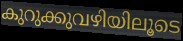
കുറുക്കുവഴിയിലൂടെ